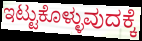
ಇಟ್ಟುಕೊಳ್ಳುವುದಕ್ಕೆ